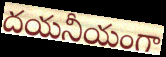
దయనీయంగా